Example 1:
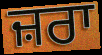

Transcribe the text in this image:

ਜ਼ਰਾ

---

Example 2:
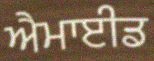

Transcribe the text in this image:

ਐਮਾਈਡ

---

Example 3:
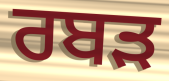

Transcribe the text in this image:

ਰਬੜ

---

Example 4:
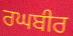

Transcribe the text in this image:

ਰਘਬੀਰ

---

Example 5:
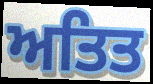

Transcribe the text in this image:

ਅਤਿਤ